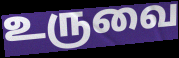
உருவை